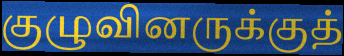
குழுவினருக்குத்